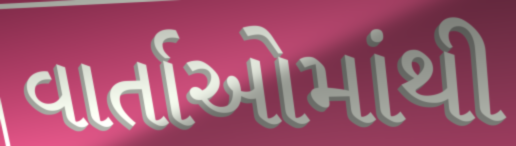
વાર્તાઓમાંથી